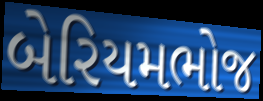
બેરિયમભોજ